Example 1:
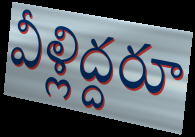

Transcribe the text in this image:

వీళ్లిద్దరూ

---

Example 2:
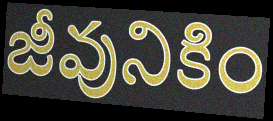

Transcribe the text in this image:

జీవునికిం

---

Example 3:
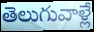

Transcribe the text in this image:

తెలుగువాళ్లే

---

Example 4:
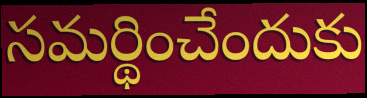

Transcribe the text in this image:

సమర్థించేందుకు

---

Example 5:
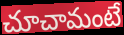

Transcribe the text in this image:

చూచామంటే